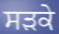
ਸਡ਼ਕੇ